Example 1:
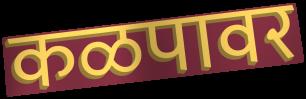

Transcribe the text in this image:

कळपावर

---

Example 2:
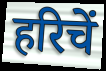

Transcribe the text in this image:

हरिचें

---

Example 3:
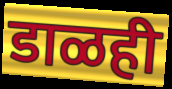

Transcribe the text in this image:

डाळही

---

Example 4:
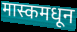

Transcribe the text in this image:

मास्कमधून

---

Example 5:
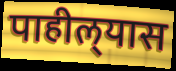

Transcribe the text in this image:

पाहील्यास